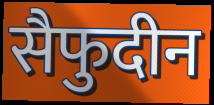
सैफुदीन